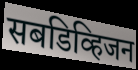
सबडिव्हिजन